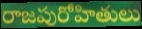
రాజపురోహితులు